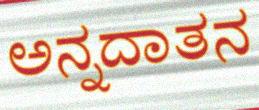
ಅನ್ನದಾತನ